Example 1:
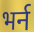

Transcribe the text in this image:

भर्न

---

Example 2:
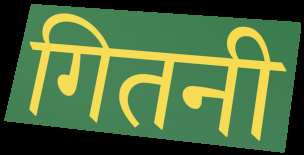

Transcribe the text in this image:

गितनी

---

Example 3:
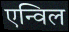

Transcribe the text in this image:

एन्विल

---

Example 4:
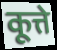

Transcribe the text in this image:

कूत्ते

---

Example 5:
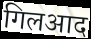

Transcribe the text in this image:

गिलआद